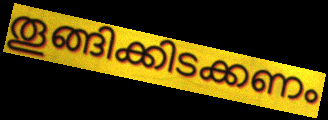
തൂങ്ങിക്കിടക്കണം